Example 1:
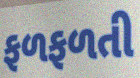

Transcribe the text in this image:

ફળફળતી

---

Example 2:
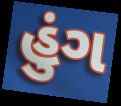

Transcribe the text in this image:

હુંગ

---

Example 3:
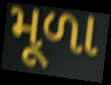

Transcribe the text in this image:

મૂળા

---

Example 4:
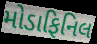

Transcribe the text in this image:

મોડાફિનિલ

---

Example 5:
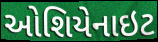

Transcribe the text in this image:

ઓશિયેનાઇટ